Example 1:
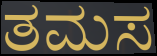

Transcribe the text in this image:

ತಮಸ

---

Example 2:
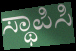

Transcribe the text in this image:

ಸ್ಥಾಪಿಸಿ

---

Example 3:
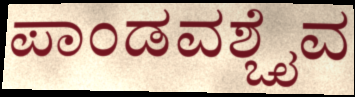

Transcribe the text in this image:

ಪಾಂಡವಶ್ಚೈವ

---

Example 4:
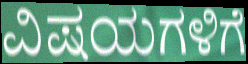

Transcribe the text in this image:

ವಿಷಯಗಳಿಗೆ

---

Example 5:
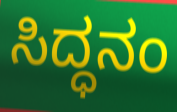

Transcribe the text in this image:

ಸಿದ್ಧನಂ